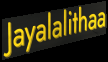
Jayalalithaa